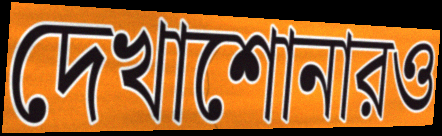
দেখাশোনারও